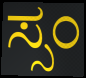
ಸ್ಸಂ